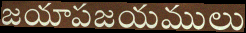
జయాపజయములు